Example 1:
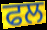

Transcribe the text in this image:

ਫਲ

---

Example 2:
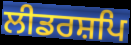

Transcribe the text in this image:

ਲੀਡਰਸ਼ਪਿ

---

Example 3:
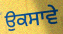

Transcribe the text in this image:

ਉਕਸਾਵੇ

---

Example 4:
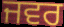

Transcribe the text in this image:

ਜਵਰ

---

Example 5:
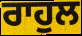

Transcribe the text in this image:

ਰਾਹੁਲ